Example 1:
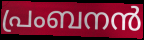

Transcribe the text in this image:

പ്രംബനൻ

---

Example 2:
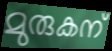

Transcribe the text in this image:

മുരുകന്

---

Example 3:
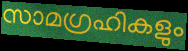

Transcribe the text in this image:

സാമഗ്രഹികളും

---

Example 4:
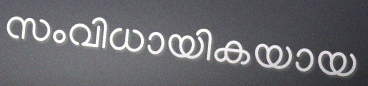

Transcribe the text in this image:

സംവിധായികയായ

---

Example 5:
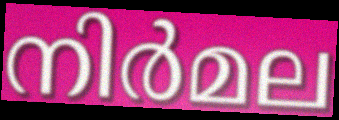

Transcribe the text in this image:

നിർമല